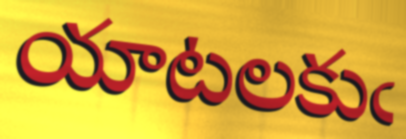
యాటలకుఁ